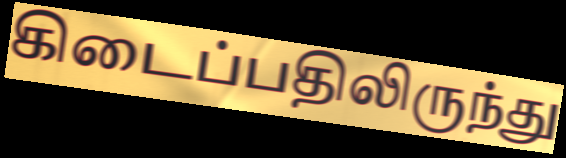
கிடைப்பதிலிருந்து